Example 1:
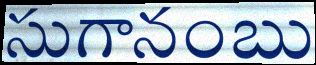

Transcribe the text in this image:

సుగానంబు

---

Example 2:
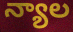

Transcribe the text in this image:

న్యాల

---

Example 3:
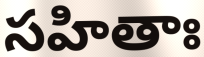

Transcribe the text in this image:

సహితాః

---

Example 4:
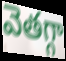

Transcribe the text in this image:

వెతగ్గా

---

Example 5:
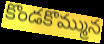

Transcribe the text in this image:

కొండకొమ్మున